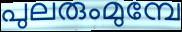
പുലരുംമുമ്പേ